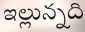
ఇల్లున్నది